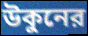
উকুনের